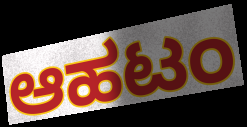
ಆಹಟಂ